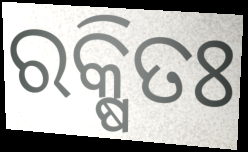
ରକ୍ଷିତଃ